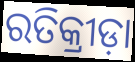
ରତିକ୍ରୀଡ଼ା